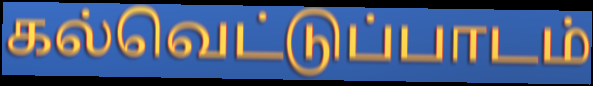
கல்வெட்டுப்பாடம்